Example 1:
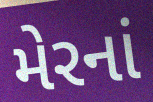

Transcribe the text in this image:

મેરનાં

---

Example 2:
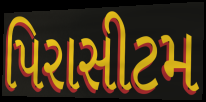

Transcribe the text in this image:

પિરાસીટમ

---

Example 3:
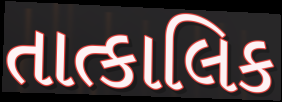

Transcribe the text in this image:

તાત્કાલિક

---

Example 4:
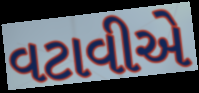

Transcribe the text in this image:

વટાવીએ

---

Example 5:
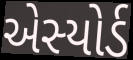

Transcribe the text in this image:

એસ્યોર્ડ